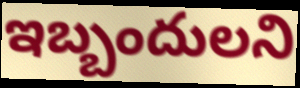
ఇబ్బందులని